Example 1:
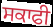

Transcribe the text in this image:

ਸਕਾਫੀ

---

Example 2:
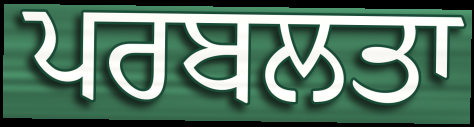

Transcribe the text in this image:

ਪਰਬਲਤਾ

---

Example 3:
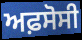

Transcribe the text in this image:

ਅਫ਼ਸੋਸੀ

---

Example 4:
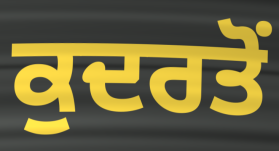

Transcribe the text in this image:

ਕੁਦਰਤੋਂ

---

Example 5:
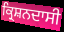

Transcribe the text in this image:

ਕ੍ਰਿਸ਼ਨਦਾਸੀ